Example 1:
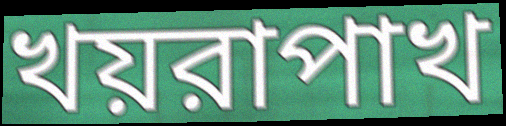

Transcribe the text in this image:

খয়রাপাখ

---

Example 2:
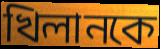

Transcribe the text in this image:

খিলানকে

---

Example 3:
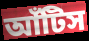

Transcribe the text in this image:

আঁটিস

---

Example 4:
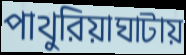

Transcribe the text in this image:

পাথুরিয়াঘাটায়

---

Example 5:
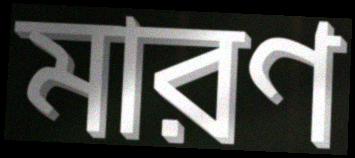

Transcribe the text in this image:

মারণ